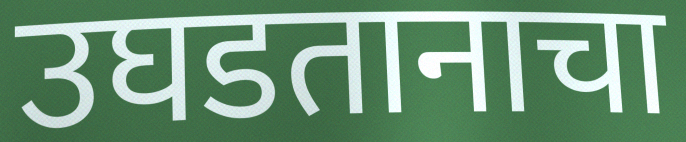
उघडतानाचा